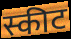
स्कीट